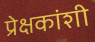
प्रेक्षकांशी